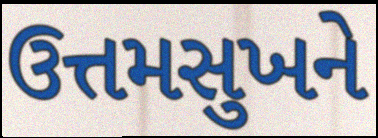
ઉત્તમસુખને